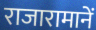
राजारामानें